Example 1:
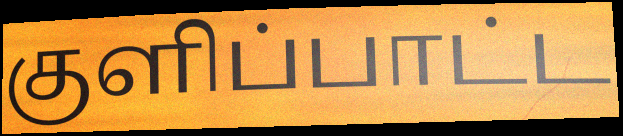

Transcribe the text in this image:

குளிப்பாட்ட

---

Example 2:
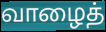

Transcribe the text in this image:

வாழைத்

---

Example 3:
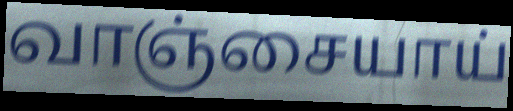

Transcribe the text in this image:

வாஞ்சையாய்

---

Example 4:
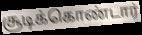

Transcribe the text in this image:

சூடிக்கொண்டார்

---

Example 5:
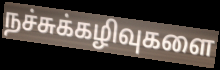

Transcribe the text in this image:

நச்சுக்கழிவுகளை